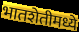
भातशेतीमध्ये